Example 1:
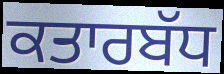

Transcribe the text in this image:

ਕਤਾਰਬੱਧ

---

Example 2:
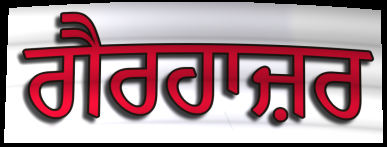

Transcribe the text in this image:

ਗੈਰਹਾਜ਼ਰ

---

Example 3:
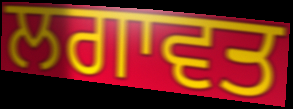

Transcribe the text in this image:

ਲਗਾਵਤ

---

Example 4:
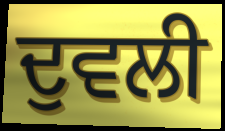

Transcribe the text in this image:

ਦੁਵਲੀ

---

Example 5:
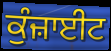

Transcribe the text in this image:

ਕੁੰਜ਼ਾਈਟ